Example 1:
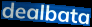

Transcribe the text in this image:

dealbata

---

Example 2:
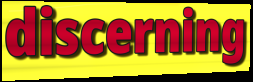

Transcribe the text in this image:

discerning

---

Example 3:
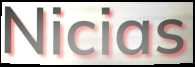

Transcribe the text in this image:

Nicias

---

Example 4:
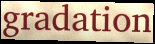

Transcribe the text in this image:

gradation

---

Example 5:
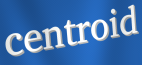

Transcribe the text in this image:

centroid